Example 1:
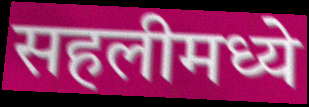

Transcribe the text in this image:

सहलीमध्ये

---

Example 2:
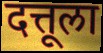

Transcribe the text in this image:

दत्तूला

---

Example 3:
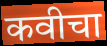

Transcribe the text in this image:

कवीचा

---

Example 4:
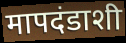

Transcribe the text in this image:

मापदंडाशी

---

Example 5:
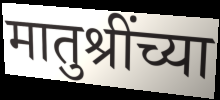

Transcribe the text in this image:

मातुश्रींच्या